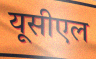
यूसीएल